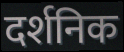
दर्शनिक